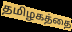
தமிழகத்தை